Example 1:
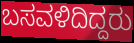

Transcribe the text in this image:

ಬಸವಳಿದಿದ್ದರು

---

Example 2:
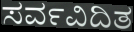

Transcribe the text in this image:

ಸರ್ವವಿದಿತ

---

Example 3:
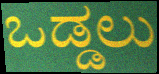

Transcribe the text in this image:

ಒಡ್ಡಲು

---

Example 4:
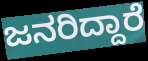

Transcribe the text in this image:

ಜನರಿದ್ದಾರೆ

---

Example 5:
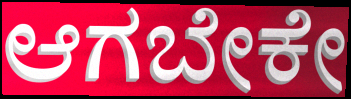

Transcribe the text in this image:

ಆಗಬೇಕೇ